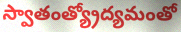
స్వాతంత్య్రోద్యమంతో